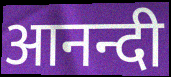
आनन्दी